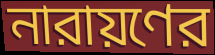
নারায়ণের